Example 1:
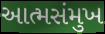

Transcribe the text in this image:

આત્મસંમુખ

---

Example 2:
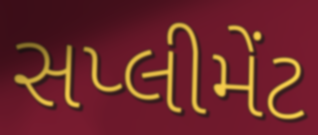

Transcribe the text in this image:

સપ્લીમેંટ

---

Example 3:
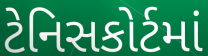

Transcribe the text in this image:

ટેનિસકોર્ટમાં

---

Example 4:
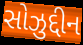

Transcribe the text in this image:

સોઝુદ્દીન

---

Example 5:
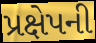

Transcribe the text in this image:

પ્રક્ષેપની